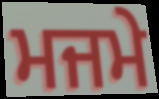
ਮਜਮੇ